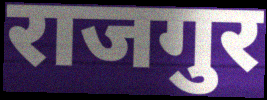
राजगुर